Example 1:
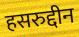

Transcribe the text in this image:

हसरुद्दीन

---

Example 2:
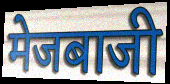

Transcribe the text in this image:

मेजबाजी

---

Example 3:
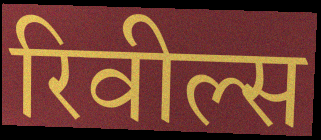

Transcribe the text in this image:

रिवील्स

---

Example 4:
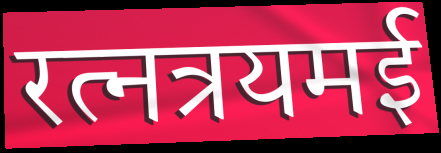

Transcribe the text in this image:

रत्नत्रयमई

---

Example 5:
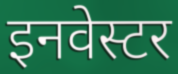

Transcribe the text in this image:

इनवेस्टर